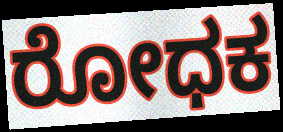
ರೋಧಕ